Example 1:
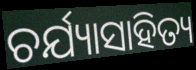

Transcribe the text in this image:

ଚର୍ଯ୍ୟାସାହିତ୍ୟ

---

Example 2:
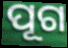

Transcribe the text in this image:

ପୂଗ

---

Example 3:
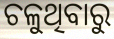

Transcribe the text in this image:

ଚଳୁଥିବାରୁ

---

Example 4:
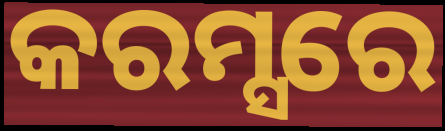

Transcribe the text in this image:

କରମ୍ସରେ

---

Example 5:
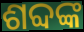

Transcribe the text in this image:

ଶବ୍ଦଙ୍କ